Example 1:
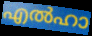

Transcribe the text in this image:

എൽഹാ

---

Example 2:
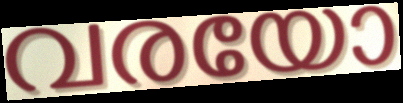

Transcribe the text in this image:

വരയോ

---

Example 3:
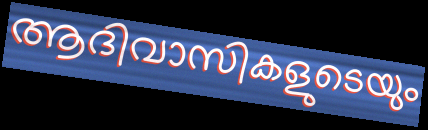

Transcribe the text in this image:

ആദിവാസികളുടെയും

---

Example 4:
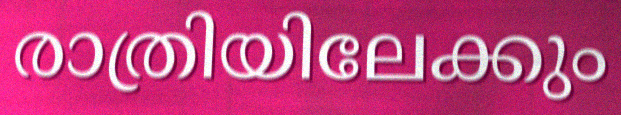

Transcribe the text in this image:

രാത്രിയിലേക്കും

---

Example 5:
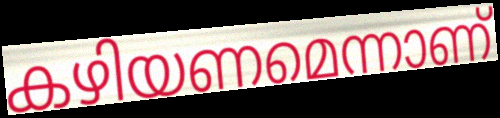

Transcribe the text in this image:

കഴിയണമെന്നാണ്